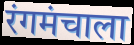
रंगमंचाला